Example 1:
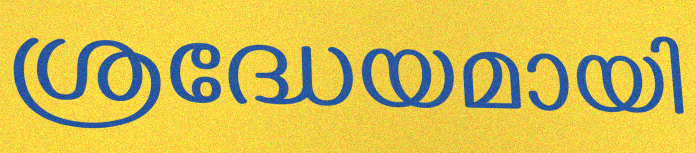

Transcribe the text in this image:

ശ്രദ്ധേയമായി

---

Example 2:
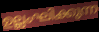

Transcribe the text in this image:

ഉല്ലംഘിക്കുന്ന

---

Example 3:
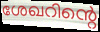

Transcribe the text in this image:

ശേഖറിന്റെ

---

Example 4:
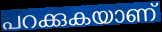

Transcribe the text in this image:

പറക്കുകയാണ്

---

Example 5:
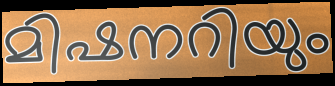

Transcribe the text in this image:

മിഷനറിയും